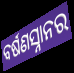
ବର୍ଷଣସ୍ନାନର